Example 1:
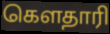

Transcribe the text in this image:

கௌதாரி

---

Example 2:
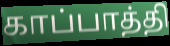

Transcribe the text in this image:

காப்பாத்தி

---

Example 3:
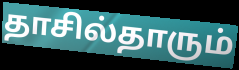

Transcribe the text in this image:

தாசில்தாரும்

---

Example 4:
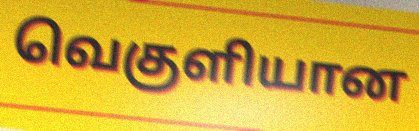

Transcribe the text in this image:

வெகுளியான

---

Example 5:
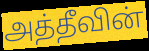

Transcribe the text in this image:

அத்தீவின்